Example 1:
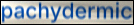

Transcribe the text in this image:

pachydermic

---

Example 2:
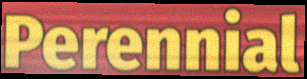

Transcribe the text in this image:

Perennial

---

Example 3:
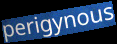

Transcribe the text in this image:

perigynous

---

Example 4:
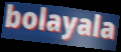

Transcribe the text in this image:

bolayala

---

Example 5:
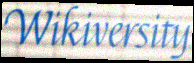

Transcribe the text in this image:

Wikiversity